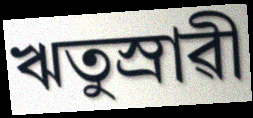
ঋতুস্ৰাৱী